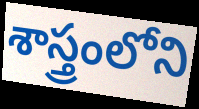
శాస్త్రంలోని